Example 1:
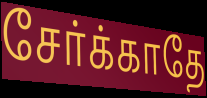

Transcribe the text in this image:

சேர்க்காதே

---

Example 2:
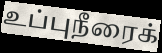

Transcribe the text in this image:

உப்புநீரைக்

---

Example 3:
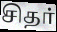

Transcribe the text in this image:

சிதர்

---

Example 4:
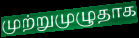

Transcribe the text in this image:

முற்றுமுழுதாக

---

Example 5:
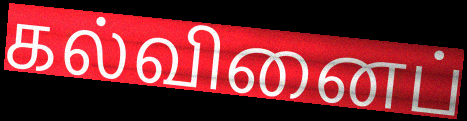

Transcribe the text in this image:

கல்வினைப்